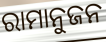
ରାମାନୁଜନ